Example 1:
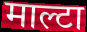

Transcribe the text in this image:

माल्टा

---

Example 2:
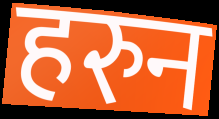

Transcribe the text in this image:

हरुन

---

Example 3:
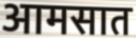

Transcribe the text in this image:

आमसात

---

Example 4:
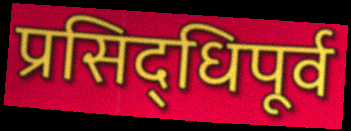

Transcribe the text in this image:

प्रसिद्धिपूर्व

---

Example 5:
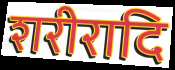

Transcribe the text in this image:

शरीरादि